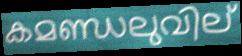
കമണ്ഡലുവില്